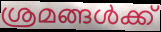
ശ്രമങ്ങൾക്ക്